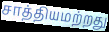
சாத்தியமற்றது